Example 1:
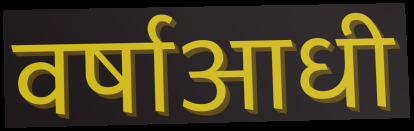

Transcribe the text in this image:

वर्षाआधी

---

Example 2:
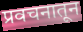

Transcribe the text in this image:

प्रवचनातून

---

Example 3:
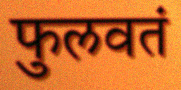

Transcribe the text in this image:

फुलवतं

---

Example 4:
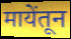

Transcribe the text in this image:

मायेंतून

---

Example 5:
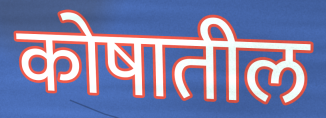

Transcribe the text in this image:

कोषातील